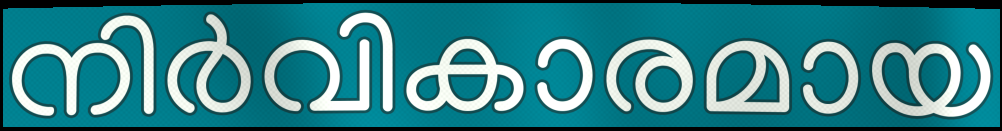
നിർവികാരമായ